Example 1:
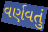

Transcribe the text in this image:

વર્ણવતું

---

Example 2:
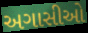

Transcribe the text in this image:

અગાસીઓ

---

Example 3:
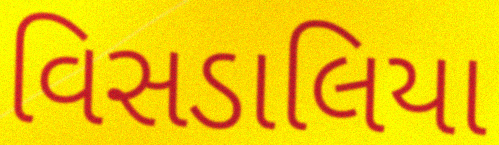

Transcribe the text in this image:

વિસડાલિયા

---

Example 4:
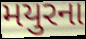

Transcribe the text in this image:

મયુરના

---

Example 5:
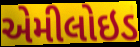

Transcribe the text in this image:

એમીલોઇડ